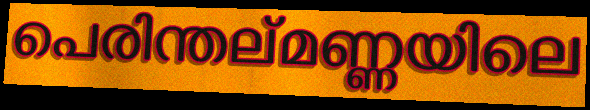
പെരിന്തല്മണ്ണയിലെ